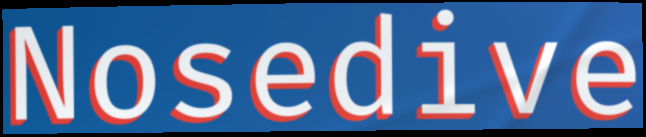
Nosedive